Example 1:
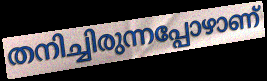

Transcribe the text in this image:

തനിച്ചിരുന്നപ്പോഴാണ്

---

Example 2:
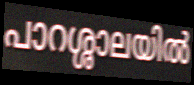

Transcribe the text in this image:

പാറശ്ശാലയിൽ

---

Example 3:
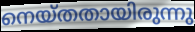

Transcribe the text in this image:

നെയ്തതായിരുന്നു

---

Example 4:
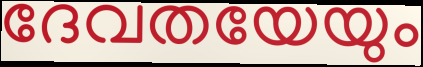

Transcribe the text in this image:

ദേവതയേയും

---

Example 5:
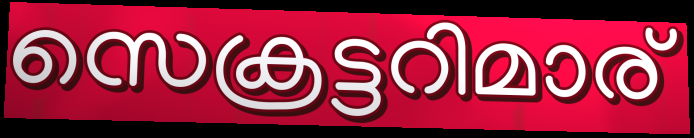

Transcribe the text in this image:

സെക്രട്ടറിമാര്